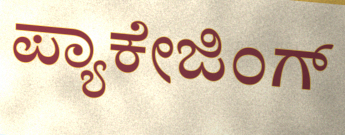
ಪ್ಯಾಕೇಜಿಂಗ್